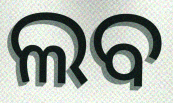
ଲବ